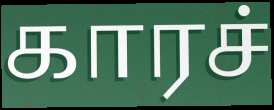
காரச்